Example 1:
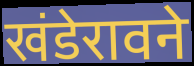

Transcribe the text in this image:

खंडेरावने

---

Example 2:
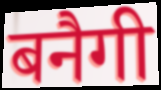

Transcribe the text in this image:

बनैगी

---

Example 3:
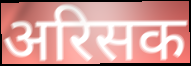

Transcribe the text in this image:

अरिसक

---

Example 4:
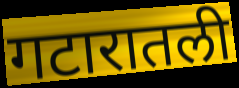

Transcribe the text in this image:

गटारातली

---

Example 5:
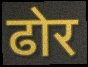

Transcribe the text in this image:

ढोर